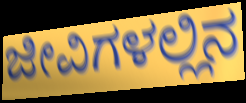
ಜೀವಿಗಳಲ್ಲಿನ